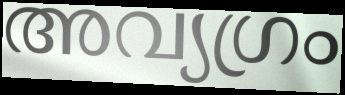
അവ്യഗ്രം